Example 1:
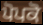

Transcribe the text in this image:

ਪੋਪਕੋ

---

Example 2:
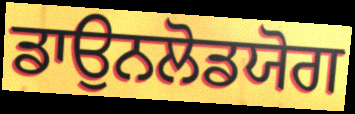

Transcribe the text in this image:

ਡਾਉਨਲੋਡਯੋਗ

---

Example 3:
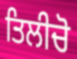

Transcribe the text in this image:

ਤਿਲੀਚੋ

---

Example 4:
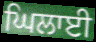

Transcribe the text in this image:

ਘਿਲਾਈ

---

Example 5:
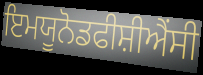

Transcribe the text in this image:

ਇਮਯੂਨੋਡਫੀਸ਼ੀਐਂਸੀ